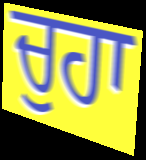
ਚੁਹਾ